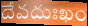
దేవదుఃఖం